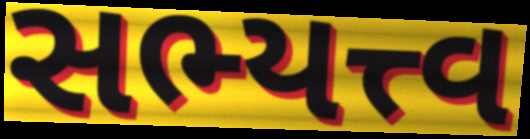
સભ્યત્ત્વ